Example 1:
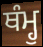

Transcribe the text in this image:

ਥੰਮ੍ਹ੍ਹੁ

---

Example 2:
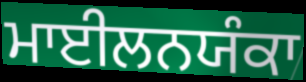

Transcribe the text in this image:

ਮਾਈਲਨਯੰਕਾ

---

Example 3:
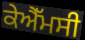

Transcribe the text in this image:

ਕੇਐੱਮਸੀ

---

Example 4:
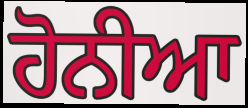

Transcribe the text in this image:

ਹੋਨੀਆ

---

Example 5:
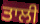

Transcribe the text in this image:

ਤਾਲੀ